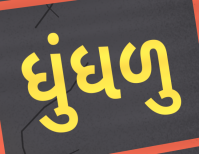
ધુંધળુ